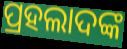
ପ୍ରହଲାଦଙ୍କ